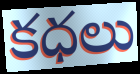
కధలు